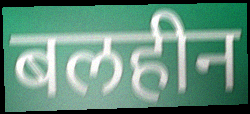
बलहीन